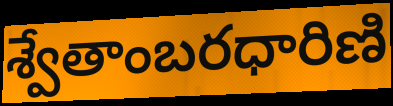
శ్వేతాంబరధారిణి